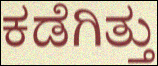
ಕಡೆಗಿತ್ತು